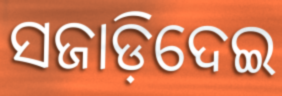
ସଜାଡ଼ିଦେଇ